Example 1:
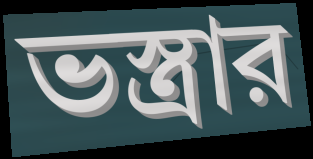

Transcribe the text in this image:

ভস্ত্রার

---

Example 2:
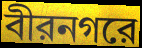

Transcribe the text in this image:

বীরনগরে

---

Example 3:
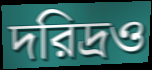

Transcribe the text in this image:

দরিদ্রও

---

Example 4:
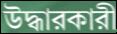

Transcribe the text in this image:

উদ্ধারকারী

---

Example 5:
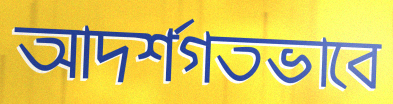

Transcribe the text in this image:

আদর্শগতভাবে